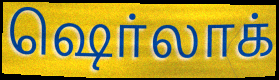
ஷெர்லாக்